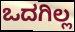
ಒದಗಿಲ್ಲ